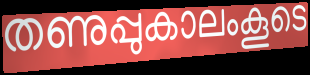
തണുപ്പുകാലംകൂടെ